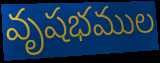
వృషభముల